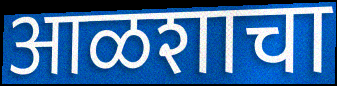
आळशाचा